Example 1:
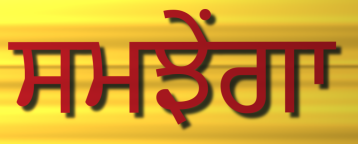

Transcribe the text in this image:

ਸਮਝੇਂਗਾ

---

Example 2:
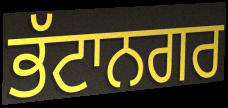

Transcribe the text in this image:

ਭੱਟਾਨਗਰ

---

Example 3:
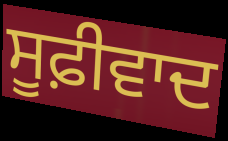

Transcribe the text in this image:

ਸੂਫ਼ੀਵਾਦ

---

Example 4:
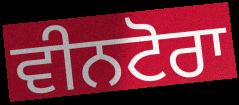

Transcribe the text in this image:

ਵੀਨਟੋਰਾ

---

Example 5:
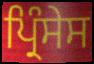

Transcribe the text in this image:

ਪ੍ਰਿੰਸੇਸ